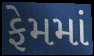
ફેમમાં